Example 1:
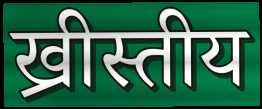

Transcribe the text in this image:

ख्रीस्तीय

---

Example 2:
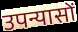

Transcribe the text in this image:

उपन्यासों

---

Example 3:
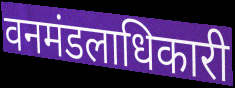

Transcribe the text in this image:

वनमंडलाधिकारी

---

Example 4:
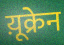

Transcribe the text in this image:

य़ूक्रेन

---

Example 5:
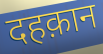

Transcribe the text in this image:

दहक़ान